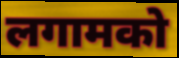
लगामको